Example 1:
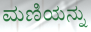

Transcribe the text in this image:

ಮಣಿಯನ್ನು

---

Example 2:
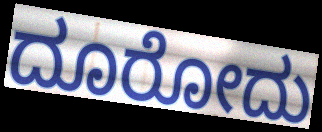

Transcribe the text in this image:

ದೂರೋದು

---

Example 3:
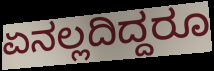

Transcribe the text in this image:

ಏನಲ್ಲದಿದ್ದರೂ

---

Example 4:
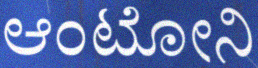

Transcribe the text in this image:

ಆಂಟೋನಿ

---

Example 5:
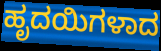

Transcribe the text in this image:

ಹೃದಯಿಗಳಾದ